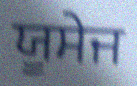
ਯੂਸੇਜ